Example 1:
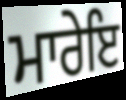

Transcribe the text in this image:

ਮਾਰੇਇ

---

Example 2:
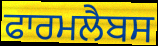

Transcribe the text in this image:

ਫਾਰਮਲੈਬਸ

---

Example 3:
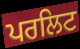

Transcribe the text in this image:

ਪਰਲਿਟ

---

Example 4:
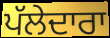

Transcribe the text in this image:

ਪੱਲੇਦਾਰਾ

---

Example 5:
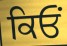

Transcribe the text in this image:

ਕਿਓਂ